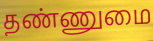
தண்ணுமை